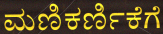
ಮಣಿಕರ್ಣಿಕೆಗೆ